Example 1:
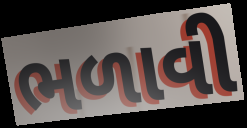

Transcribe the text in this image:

ભળાવી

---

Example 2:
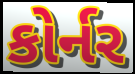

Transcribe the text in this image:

કોર્નર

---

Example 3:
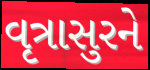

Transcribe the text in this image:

વૃત્રાસુરને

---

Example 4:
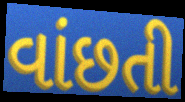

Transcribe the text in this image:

વાંછતી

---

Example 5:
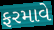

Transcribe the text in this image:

ફરમાવે